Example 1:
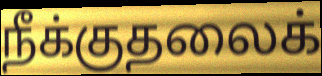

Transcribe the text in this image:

நீக்குதலைக்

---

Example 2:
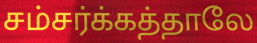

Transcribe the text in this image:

சம்சர்க்கத்தாலே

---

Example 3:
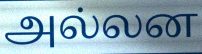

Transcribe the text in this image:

அல்லன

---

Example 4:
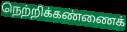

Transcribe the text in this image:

நெற்றிக்கண்ணைக்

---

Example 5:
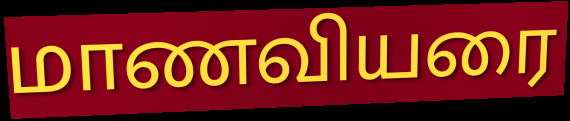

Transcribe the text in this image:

மாணவியரை